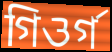
গিওৰ্গ